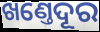
ଖଣ୍ତେଦୂର